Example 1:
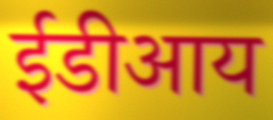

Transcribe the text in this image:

ईडीआय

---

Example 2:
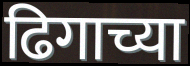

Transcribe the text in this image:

ढिगाच्या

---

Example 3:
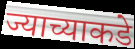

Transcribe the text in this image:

ज्याच्याकडे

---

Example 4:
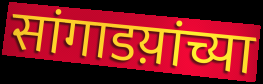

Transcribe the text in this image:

सांगाडय़ांच्या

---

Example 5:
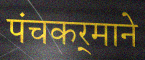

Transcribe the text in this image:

पंचकर्माने